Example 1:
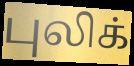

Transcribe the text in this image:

புலிக்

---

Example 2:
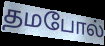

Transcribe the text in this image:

தமபோல்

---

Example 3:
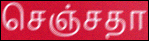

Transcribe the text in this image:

செஞ்சதா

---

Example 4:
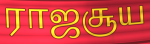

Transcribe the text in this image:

ராஜசூய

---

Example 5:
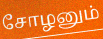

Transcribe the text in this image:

சோழனும்